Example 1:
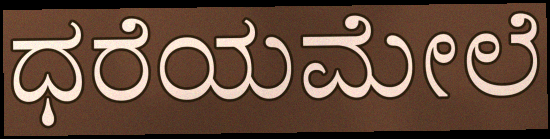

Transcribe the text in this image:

ಧರೆಯಮೇಲೆ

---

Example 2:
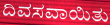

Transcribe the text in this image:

ದಿವಸವಾಯಿತು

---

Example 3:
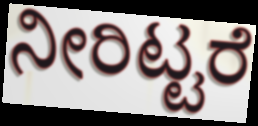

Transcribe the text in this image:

ನೀರಿಟ್ಟರೆ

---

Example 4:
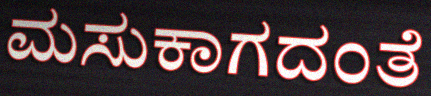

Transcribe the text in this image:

ಮಸುಕಾಗದಂತೆ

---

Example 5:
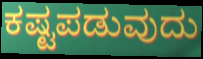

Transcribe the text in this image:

ಕಷ್ಟಪಡುವುದು